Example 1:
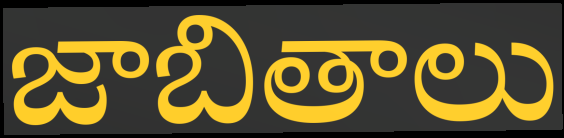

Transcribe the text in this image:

జాబితాలు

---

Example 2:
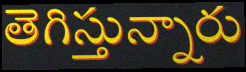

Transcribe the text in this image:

తెగిస్తున్నారు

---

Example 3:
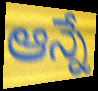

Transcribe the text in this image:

ఆన్నే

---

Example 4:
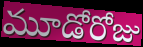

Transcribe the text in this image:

మూడోరోజు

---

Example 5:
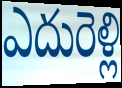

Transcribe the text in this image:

ఎదురెళ్లి